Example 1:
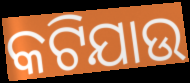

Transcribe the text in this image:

କଟିଯାଉ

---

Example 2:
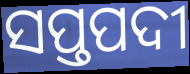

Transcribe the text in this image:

ସପ୍ତପଦୀ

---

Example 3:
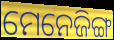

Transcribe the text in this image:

ମେନେଜିଙ୍ଗ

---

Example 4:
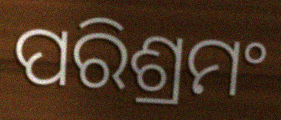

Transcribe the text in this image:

ପରିଶ୍ରମଂ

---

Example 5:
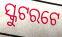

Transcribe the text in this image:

ସ୍କୁଟରଟେ